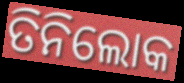
ତିନିଲୋକ